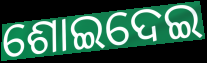
ଶୋଇଦେଇ